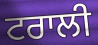
ਟਰਾਲੀ